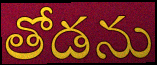
తోడను